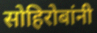
सोहिरोबांनी